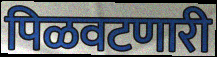
पिळवटणारी